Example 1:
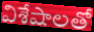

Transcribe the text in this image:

విశేషాలతో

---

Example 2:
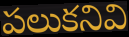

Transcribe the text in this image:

పలుకనివి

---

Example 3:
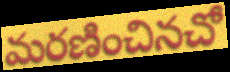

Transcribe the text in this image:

మరణించినచో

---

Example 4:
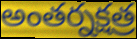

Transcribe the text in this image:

అంతర్నక్షత్ర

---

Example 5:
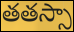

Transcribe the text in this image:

తతస్సా